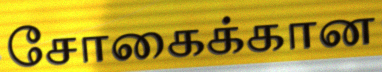
சோகைக்கான